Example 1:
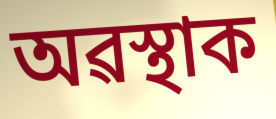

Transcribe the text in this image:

অৱস্থাক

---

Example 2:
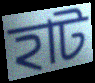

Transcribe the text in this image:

হাট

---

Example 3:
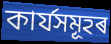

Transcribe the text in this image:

কাৰ্যসমূহৰ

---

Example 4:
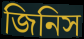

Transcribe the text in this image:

জিনিস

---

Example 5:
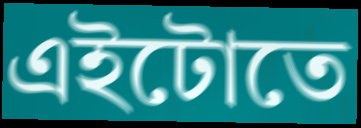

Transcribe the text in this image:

এইটোতে